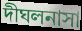
দীঘলনাসা